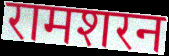
रामशरन